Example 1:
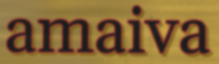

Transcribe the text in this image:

amaiva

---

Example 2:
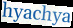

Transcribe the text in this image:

hyachya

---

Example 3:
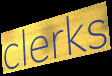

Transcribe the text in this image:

clerks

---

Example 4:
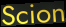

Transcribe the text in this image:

Scion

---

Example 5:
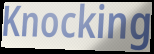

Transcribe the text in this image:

Knocking